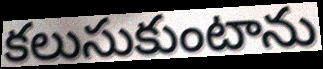
కలుసుకుంటాను